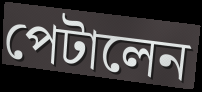
পেটালেন